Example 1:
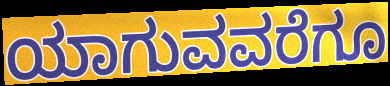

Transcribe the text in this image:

ಯಾಗುವವರೆಗೂ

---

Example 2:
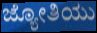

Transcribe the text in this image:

ಜ್ಯೋತಿಯು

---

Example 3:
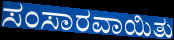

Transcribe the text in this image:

ಸಂಸಾರವಾಯಿತು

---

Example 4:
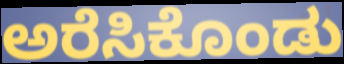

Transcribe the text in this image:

ಅರೆಸಿಕೊಂಡು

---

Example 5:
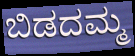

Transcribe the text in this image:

ಬಿಡದಮ್ಮ